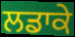
ਲਡਾਕੇ